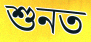
শুনত